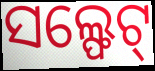
ସଲ୍ଫେଟ୍